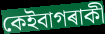
কেইবাগৰাকী